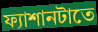
ফ্যাশানটাতে